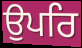
ਉਪਰਿ